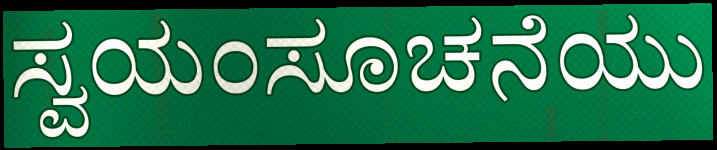
ಸ್ವಯಂಸೂಚನೆಯು